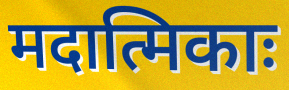
मदात्मिकाः